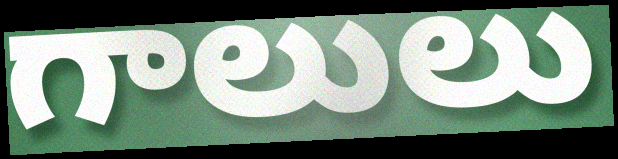
గాలులు